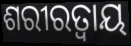
ଶରୀରତ୍ୱାୟ